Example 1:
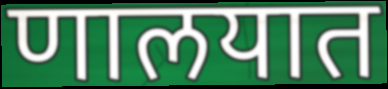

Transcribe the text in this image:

णालयात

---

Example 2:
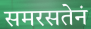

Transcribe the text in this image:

समरसतेनं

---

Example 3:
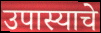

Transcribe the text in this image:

उपास्याचे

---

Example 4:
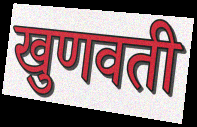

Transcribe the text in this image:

खुणवती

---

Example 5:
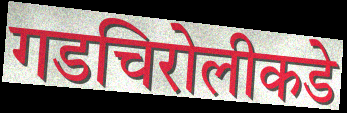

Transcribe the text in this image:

गडचिरोलीकडे